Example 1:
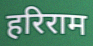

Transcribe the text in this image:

हरिराम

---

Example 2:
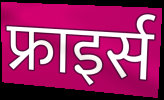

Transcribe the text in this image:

फ्राइर्स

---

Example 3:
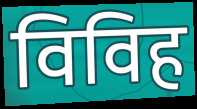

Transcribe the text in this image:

विविह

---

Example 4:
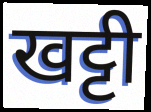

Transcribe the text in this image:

खट्टी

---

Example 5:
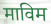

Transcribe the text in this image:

माविम